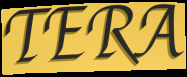
TERA